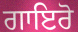
ਗਾਇਰੋ